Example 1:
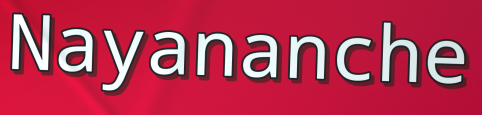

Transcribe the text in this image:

Nayananche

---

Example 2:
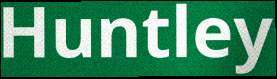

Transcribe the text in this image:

Huntley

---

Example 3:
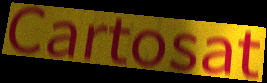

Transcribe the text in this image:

Cartosat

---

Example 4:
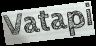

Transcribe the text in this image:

Vatapi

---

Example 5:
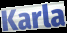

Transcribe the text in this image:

Karla